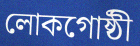
লোকগোষ্ঠী